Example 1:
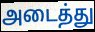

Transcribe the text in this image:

அடைத்து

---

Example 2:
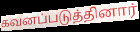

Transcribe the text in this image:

கவனப்படுத்தினார்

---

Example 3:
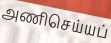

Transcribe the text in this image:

அணிசெய்யப்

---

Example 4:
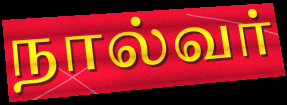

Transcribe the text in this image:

நால்வர்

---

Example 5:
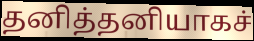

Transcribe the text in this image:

தனித்தனியாகச்